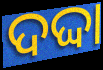
ଦଦ୍ଦା